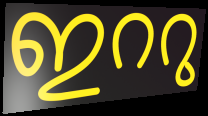
ഇററു